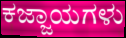
ಕಜ್ಜಾಯಗಳು